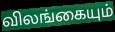
விலங்கையும்